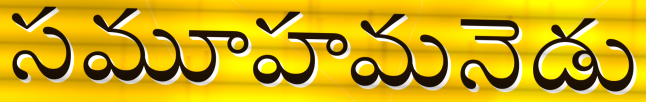
సమూహమనెడు